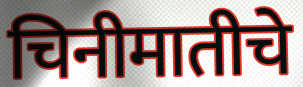
चिनीमातीचे